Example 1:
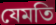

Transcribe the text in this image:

যেমতি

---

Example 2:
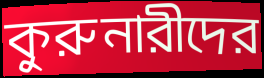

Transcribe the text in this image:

কুরুনারীদের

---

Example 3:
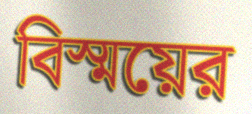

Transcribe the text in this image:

বিস্ময়ের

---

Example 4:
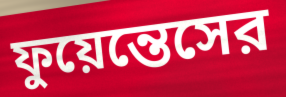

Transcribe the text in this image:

ফুয়েন্তেসের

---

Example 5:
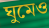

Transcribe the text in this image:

ঘুমেও